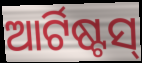
ଆର୍ଟିଷ୍ଟସ୍